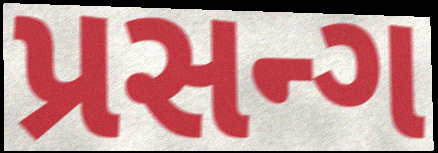
પ્રસન્ગ